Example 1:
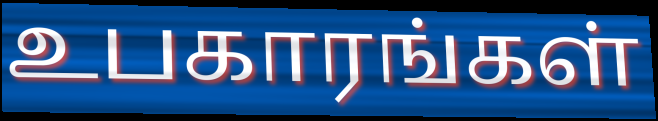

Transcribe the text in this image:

உபகாரங்கள்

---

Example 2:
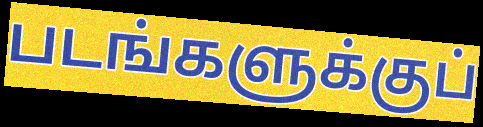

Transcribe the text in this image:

படங்களுக்குப்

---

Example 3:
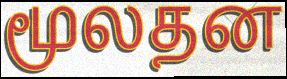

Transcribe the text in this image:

மூலதன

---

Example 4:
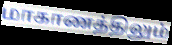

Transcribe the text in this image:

மாகாணத்திலும்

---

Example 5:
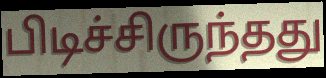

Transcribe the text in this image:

பிடிச்சிருந்தது